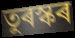
তুৰস্কৰ